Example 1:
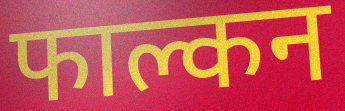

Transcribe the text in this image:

फाल्कन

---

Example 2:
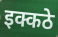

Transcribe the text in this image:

इक्कठे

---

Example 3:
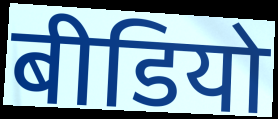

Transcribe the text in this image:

बीडियो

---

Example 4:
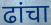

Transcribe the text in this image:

ढांचा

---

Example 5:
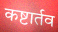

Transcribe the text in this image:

कष्टार्तव